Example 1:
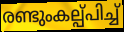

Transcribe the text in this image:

രണ്ടുംകല്പ്പിച്ച്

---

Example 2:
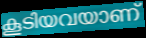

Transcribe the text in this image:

കൂടിയവയാണ്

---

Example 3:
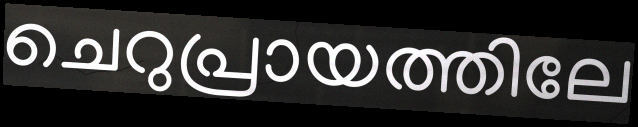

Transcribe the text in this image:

ചെറുപ്രായത്തിലേ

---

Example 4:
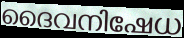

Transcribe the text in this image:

ദൈവനിഷേധ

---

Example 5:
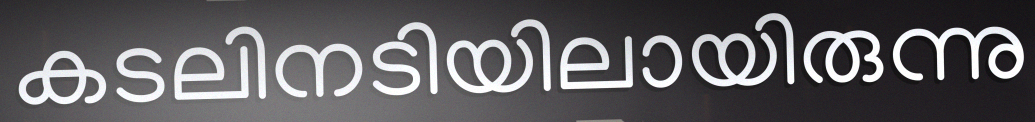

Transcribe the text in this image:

കടലിനടിയിലായിരുന്നു